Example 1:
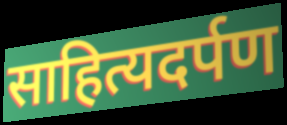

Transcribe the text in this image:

साहित्यदर्पण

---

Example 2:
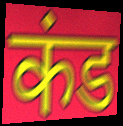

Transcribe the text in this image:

कंड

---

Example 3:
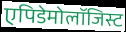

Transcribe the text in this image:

एपिडेमोलॉजिस्ट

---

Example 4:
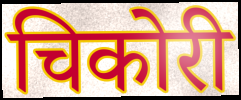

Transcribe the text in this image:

चिकोरी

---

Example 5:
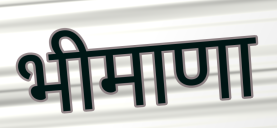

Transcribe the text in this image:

भीमाणा